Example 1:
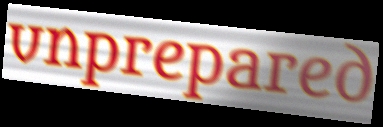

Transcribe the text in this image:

unprepared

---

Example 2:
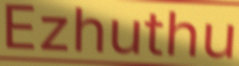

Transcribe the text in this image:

Ezhuthu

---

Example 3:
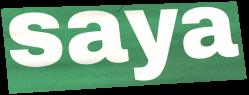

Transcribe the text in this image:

saya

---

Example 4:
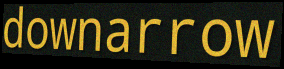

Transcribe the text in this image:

downarrow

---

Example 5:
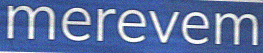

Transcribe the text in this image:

merevem